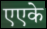
एएके